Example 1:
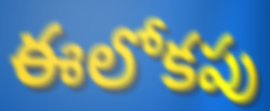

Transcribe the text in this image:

ఈలోకపు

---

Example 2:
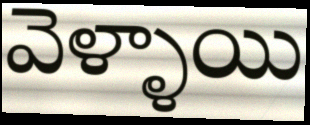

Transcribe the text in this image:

వెళ్ళాయి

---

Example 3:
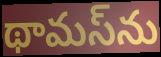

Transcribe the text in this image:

థామస్‌ను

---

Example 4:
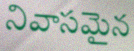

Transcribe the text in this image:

నివాసమైన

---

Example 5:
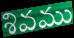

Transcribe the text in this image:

శివము